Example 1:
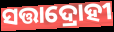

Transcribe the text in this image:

ସତ୍ତାଦ୍ରୋହୀ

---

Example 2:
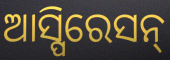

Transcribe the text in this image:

ଆସ୍ପିରେସନ୍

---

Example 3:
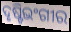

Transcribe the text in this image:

ଦୃଷ୍ଟିଭଂଗୀର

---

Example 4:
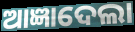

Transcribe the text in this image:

ଆଜ୍ଞାଦେଲା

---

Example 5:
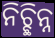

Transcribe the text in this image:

ନିଚ୍ଛିନ୍ନ